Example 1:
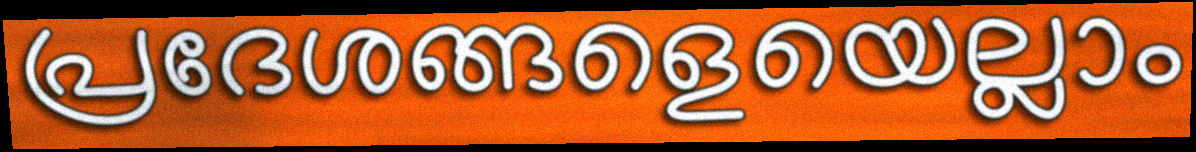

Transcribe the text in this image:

പ്രദേശങ്ങളെയെല്ലാം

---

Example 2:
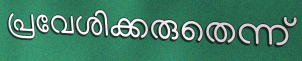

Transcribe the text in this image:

പ്രവേശിക്കരുതെന്ന്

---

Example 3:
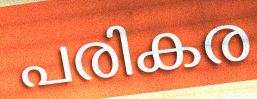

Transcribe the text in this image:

പരികര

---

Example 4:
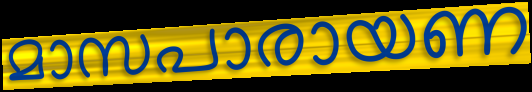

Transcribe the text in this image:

മാസപാരായണ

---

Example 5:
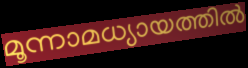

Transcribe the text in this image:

മൂന്നാമധ്യായത്തിൽ